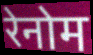
रेनोम